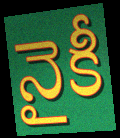
నైకీ